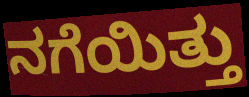
ನಗೆಯಿತ್ತು